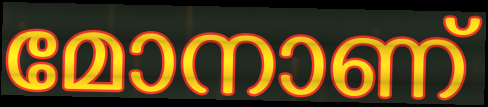
മോനാണ്